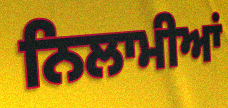
ਨਿਲਾਮੀਆਂ